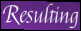
Resulting